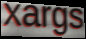
xargs